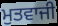
ਮੁਤਵਾਜੀ